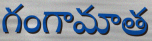
గంగామాత